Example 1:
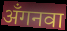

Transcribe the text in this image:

अँगनवा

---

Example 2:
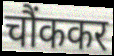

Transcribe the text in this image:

चौंककर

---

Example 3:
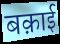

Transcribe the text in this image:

बक़ाई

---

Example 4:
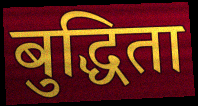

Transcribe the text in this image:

बुद्धिता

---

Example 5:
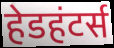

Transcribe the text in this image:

हेडहंटर्स